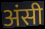
अंसी